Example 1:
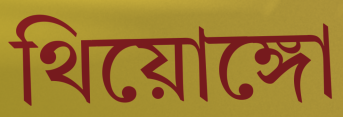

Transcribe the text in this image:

থিয়োঙ্গো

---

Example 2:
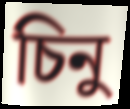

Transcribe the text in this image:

চিনু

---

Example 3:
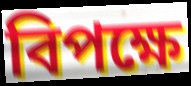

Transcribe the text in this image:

বিপক্ষে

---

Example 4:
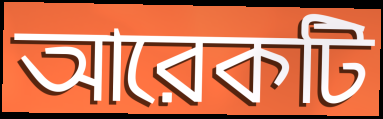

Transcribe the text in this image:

আরেকটি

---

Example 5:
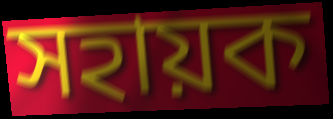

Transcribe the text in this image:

সহায়ক